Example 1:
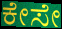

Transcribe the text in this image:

ಕೇಸೇ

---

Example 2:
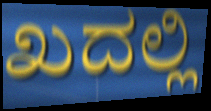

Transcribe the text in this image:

ಖದಲ್ಲಿ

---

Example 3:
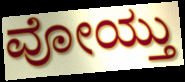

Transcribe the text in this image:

ವೋಯ್ತು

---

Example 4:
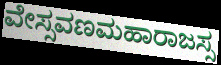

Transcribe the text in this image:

ವೇಸ್ಸವಣಮಹಾರಾಜಸ್ಸ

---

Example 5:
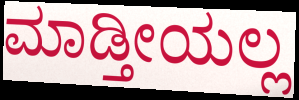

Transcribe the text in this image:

ಮಾಡ್ತೀಯಲ್ಲ